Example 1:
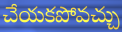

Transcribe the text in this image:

చేయకపోవచ్చు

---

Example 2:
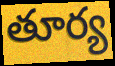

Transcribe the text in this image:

తూర్య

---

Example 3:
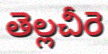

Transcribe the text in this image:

తెల్లచీరె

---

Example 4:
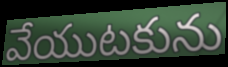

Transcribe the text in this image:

వేయుటకును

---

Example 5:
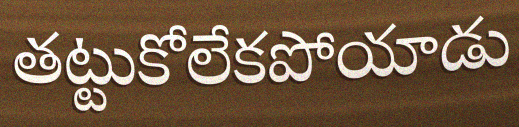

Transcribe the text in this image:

తట్టుకోలేకపోయాడు